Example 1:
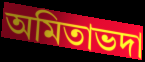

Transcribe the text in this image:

অমিতাভদা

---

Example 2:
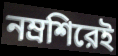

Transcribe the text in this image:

নম্রশিরেই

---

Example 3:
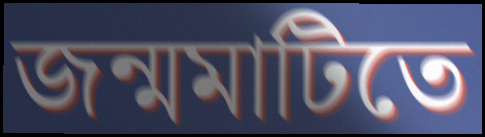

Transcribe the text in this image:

জন্মমাটিতে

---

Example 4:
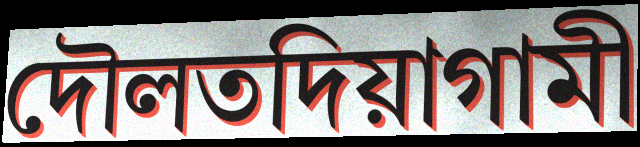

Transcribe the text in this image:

দৌলতদিয়াগামী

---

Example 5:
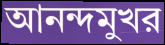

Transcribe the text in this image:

আনন্দমুখর